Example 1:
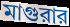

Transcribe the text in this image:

মাগুরার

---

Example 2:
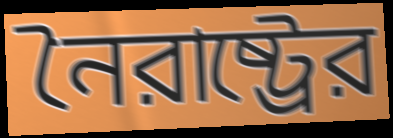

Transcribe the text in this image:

নৈরাষ্ট্রের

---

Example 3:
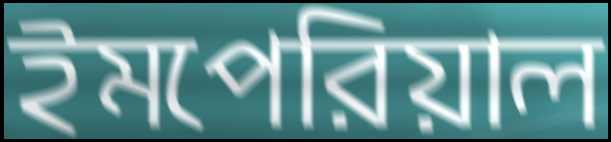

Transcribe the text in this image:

ইমপেরিয়াল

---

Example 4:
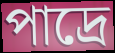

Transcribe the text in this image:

পাদ্রে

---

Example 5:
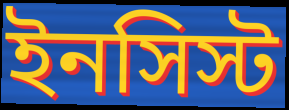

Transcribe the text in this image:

ইনসিস্ট